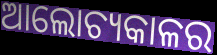
ଆଲୋଚ୍ୟକାଳର